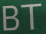
BT